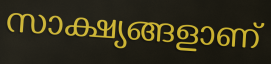
സാക്ഷ്യങ്ങളാണ്